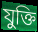
যুক্তি